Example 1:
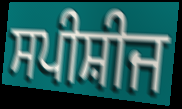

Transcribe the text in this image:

ਸਪੀਸ਼ੀਜ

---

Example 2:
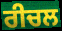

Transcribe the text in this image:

ਰੀਚਲ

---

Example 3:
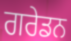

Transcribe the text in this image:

ਗਰੇਡਨ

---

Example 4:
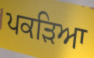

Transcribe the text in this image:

ਪਕੜਿਆ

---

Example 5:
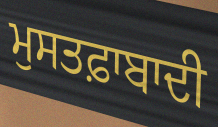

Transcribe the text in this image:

ਮੁਸਤਫ਼ਾਬਾਦੀ